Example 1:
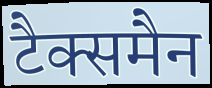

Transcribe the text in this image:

टैक्समैन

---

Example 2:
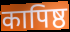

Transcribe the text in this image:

कापिष्ठ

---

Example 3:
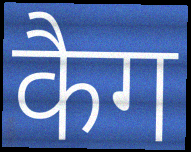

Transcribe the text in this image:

कैग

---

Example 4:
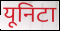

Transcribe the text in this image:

यूनिटा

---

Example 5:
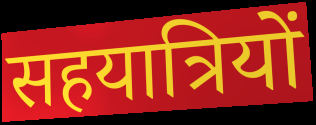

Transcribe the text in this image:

सहयात्रियों